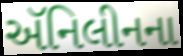
ઍનિલીનના